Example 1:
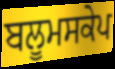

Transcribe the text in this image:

ਬਲੂਮਸਕੇਪ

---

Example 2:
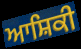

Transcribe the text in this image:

ਆਸ਼ਿਕੀ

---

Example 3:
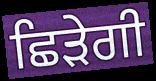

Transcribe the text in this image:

ਛਿੜੇਗੀ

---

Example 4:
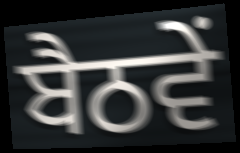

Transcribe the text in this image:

ਬੈਠਵੇਂ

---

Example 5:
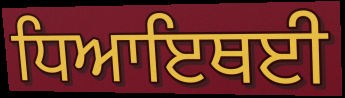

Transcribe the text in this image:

ਧਿਆਇਥਈ